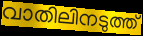
വാതിലിനടുത്ത്